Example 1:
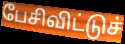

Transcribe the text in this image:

பேசிவிட்டுச்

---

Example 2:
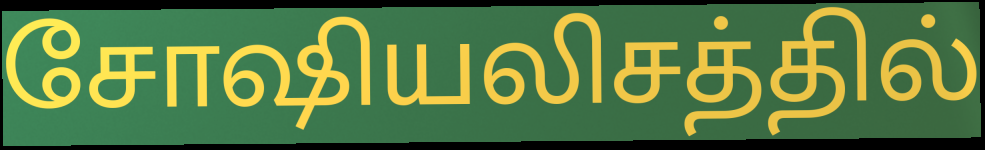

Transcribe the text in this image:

சோஷியலிசத்தில்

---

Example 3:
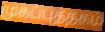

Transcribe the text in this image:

முகப்புத்தகம்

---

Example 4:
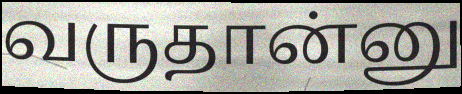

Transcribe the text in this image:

வருதான்னு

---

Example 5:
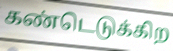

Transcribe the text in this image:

கண்டெடுக்கிற